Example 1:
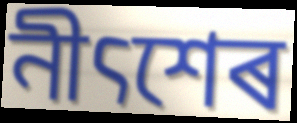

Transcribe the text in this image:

নীৎশেৰ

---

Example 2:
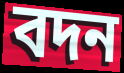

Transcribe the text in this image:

বদন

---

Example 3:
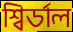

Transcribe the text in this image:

শ্বিৰ্ডাল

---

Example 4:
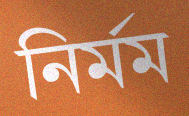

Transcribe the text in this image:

নিৰ্মম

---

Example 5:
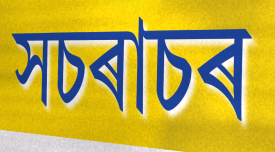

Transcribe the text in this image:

সচৰাচৰ